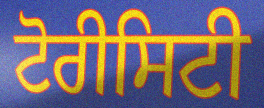
ਟੋਰੀਸਿਟੀ